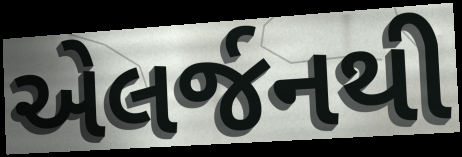
એલર્જનથી